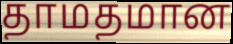
தாமதமான